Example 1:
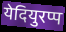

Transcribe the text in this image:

येदियुरप्प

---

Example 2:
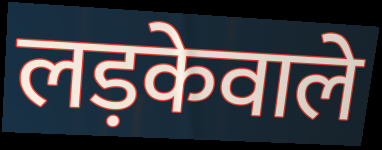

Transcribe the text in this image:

लड़केवाले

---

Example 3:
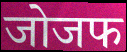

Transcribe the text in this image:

जोजफ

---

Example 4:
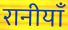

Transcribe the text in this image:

रानीयाँ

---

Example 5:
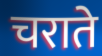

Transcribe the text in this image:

चराते